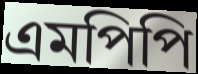
এমপিপি